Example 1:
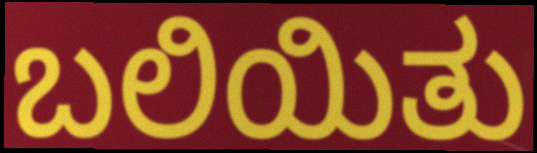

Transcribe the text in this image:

ಬಲಿಯಿತು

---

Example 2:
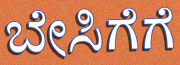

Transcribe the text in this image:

ಬೇಸಿಗೆಗೆ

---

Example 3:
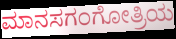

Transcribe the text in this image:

ಮಾನಸಗಂಗೋತ್ರಿಯ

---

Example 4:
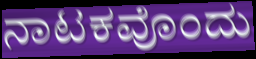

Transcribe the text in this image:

ನಾಟಕವೊಂದು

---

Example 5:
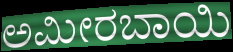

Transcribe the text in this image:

ಅಮೀರಬಾಯಿ